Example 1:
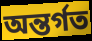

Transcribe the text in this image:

অন্তর্গত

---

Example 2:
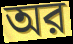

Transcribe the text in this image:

অর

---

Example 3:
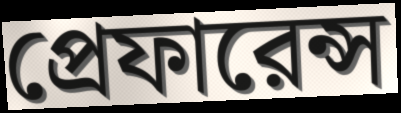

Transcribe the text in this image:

প্রেফারেন্স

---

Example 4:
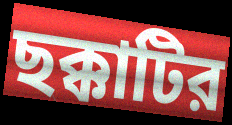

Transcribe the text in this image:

ছক্কাটির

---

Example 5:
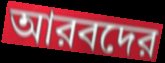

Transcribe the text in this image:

আরবদের